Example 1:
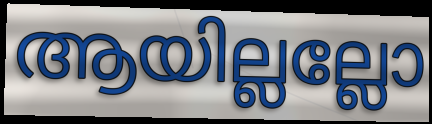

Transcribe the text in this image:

ആയില്ലല്ലോ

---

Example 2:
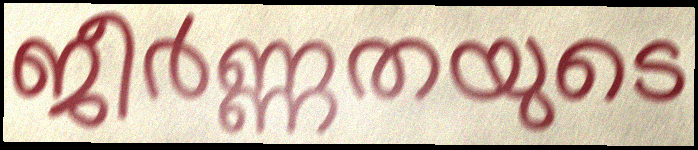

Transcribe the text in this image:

ജീർണ്ണതയുടെ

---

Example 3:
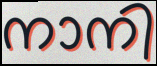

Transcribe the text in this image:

നാനി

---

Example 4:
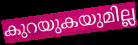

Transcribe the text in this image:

കുറയുകയുമില്ല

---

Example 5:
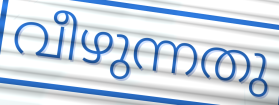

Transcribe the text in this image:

വീഴുന്നതു